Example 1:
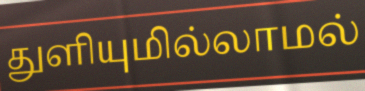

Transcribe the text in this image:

துளியுமில்லாமல்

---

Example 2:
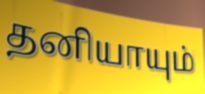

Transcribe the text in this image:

தனியாயும்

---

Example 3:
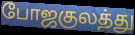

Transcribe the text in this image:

போஜகுலத்து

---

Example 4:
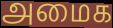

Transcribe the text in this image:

அமைக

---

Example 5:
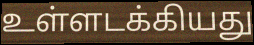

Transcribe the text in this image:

உள்ளடக்கியது